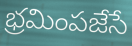
భ్రమింపజేసే